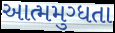
આત્મમુગ્ધતા